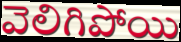
వెలిగిపోయి